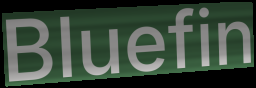
Bluefin